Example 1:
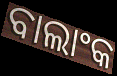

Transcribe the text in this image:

ବାଲାଂକ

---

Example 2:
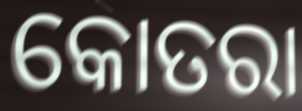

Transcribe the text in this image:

କୋତରା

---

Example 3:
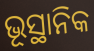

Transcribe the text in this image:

ଭୂସ୍ଥାନିକ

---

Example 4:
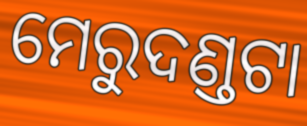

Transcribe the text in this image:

ମେରୁଦଣ୍ଡଟା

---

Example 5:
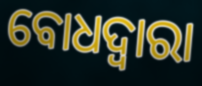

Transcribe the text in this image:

ବୋଧଦ୍ଵାରା